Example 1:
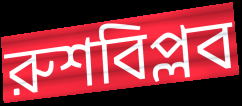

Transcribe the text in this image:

রুশবিপ্লব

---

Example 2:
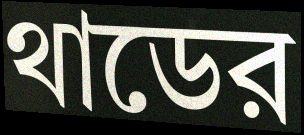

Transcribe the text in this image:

থাডের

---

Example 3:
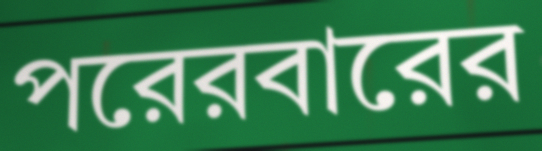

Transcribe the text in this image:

পরেরবারের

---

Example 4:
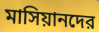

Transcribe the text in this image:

মাসিয়ানদের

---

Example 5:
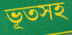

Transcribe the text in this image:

ভূতসহ